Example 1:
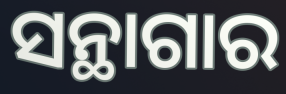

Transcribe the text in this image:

ସନ୍ଥାଗାର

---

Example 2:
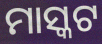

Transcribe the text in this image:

ମାସ୍କଟ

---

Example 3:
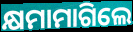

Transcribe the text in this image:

କ୍ଷମାମାଗିଲେ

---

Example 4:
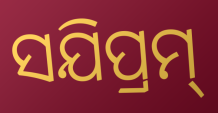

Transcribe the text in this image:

ସଯିପ୍ରମ୍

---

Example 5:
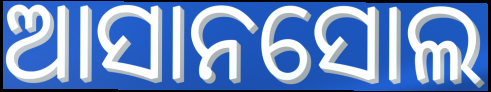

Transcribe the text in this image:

ଆସାନସୋଲ